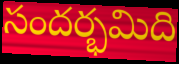
సందర్భమిది